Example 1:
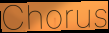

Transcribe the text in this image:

Chorus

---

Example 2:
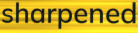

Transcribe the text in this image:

sharpened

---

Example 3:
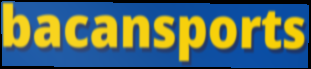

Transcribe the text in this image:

bacansports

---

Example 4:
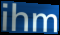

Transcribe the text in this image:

ihm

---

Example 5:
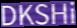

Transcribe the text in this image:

DKSHi